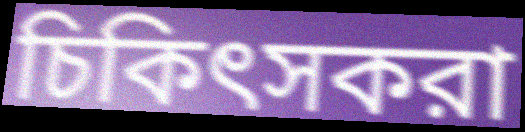
চিকিৎসকরা